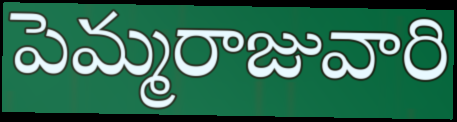
పెమ్మరాజువారి